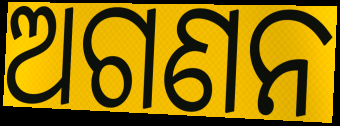
ଅଗଣନ